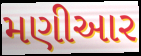
મણીઆર